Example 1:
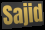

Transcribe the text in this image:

Sajid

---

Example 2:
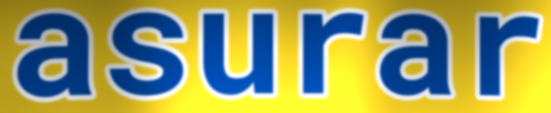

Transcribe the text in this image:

asurar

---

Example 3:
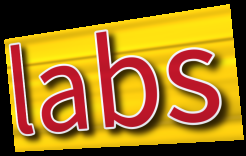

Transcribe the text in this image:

labs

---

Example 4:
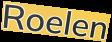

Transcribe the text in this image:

Roelen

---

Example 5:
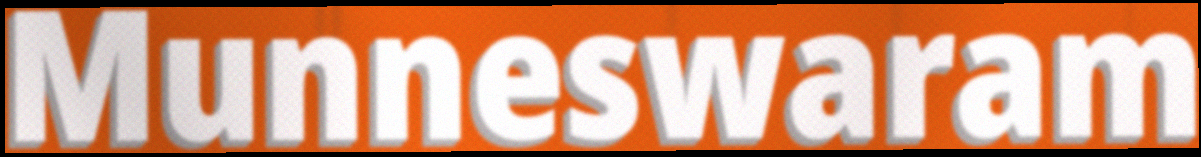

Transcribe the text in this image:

Munneswaram